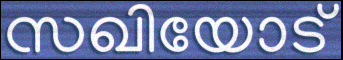
സഖിയോട്